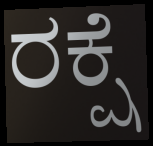
ರಕ್ಷೆ